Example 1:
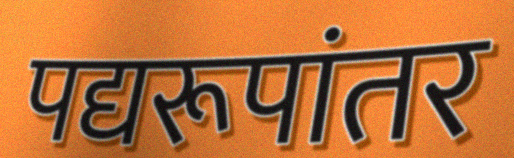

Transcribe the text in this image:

पद्यरूपांतर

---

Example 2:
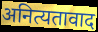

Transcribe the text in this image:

अनित्यतावाद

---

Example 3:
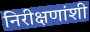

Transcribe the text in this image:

निरीक्षणांशी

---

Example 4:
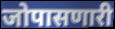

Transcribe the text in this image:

जोपासणारी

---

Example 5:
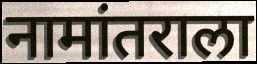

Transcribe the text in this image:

नामांतराला